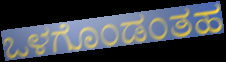
ಒಳಗೊಂಡಂತಹ